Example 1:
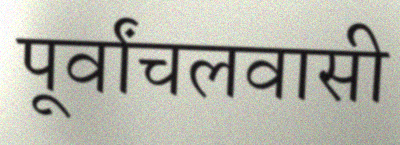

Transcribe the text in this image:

पूर्वांचलवासी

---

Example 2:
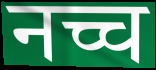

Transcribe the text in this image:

नच्च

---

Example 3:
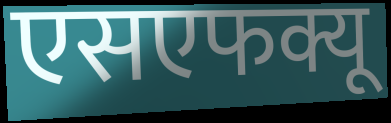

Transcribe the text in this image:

एसएफक्यू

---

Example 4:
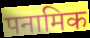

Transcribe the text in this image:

पनामिक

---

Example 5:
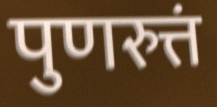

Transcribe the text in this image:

पुणरुत्तं